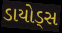
ડાયોડ્સ